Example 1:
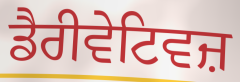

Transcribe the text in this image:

ਡੈਰੀਵੇਟਿਵਜ਼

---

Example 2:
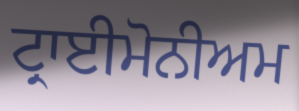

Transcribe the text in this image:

ਟ੍ਰਾਈਮੋਨੀਅਮ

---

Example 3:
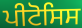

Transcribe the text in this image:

ਪੀਟੋਸਿਸ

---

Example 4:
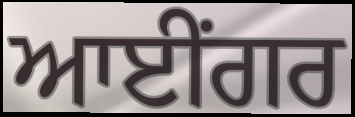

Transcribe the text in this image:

ਆਈਂਗਰ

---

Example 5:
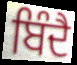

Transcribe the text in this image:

ਬਿੰਦੈ